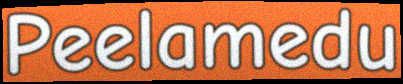
Peelamedu